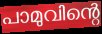
പാമുവിന്റെ